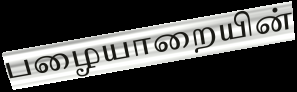
பழையாறையின்